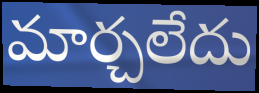
మార్చలేదు